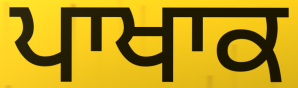
ਪਾਖਾਕ